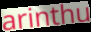
arinthu